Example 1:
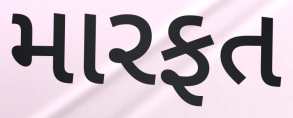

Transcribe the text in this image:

મારફત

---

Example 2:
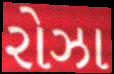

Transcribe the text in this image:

રોઝા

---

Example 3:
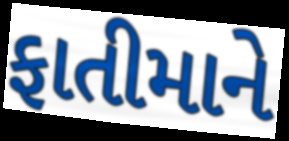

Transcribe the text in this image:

ફાતીમાને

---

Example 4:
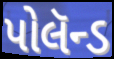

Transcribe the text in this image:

પોલૅન્ડ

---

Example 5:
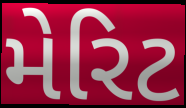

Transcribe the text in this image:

મેરિટ